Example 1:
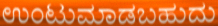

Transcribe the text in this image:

ಉಂಟುಮಾಡಬಹುದು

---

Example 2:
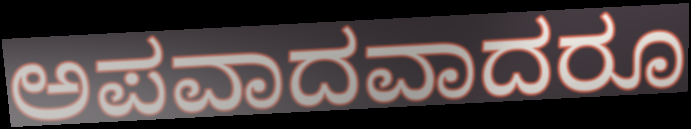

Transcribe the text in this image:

ಅಪವಾದವಾದರೂ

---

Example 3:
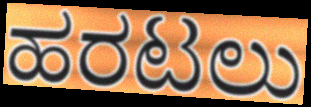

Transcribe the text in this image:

ಹರಟಲು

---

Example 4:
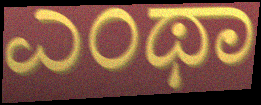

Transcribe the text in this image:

ಎಂಥಾ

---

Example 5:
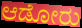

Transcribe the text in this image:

ಆಡೋರು